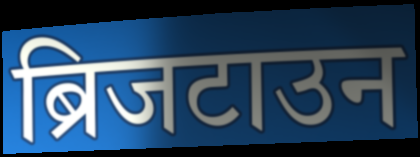
ब्रिजटाउन